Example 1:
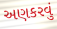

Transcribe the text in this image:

અણકરવું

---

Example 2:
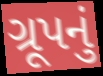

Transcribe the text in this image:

ગ્રૂપનું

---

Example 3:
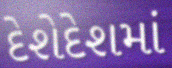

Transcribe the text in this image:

દેશેદેશમાં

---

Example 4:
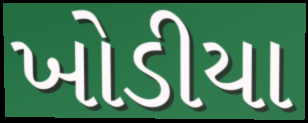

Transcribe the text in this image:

ખોડીયા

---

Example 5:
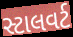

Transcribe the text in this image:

સ્ટાલવર્ટ